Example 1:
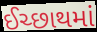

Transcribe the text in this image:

ઈચ્છાથમાં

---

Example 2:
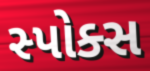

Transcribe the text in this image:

સ્પોક્સ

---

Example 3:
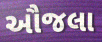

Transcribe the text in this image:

ઔજલા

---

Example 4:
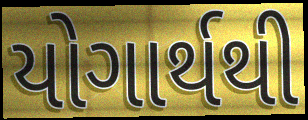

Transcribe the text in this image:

યોગાર્થથી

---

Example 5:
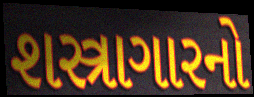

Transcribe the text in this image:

શસ્ત્રાગારનો